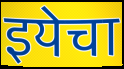
इयेचा